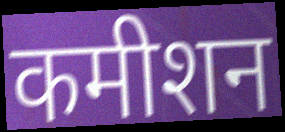
कमीशन